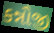
કન્નૌજી